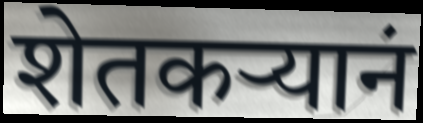
शेतकऱ्यानं